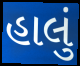
હાલું